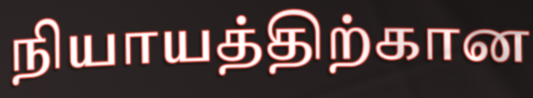
நியாயத்திற்கான